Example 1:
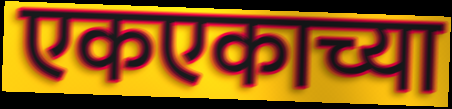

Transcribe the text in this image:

एकएकाच्या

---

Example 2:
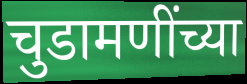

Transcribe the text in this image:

चुडामणींच्या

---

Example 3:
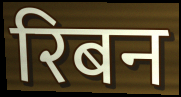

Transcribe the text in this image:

रिबन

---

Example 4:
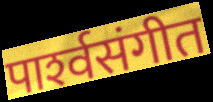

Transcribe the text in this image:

पार्श्‍वसंगीत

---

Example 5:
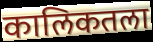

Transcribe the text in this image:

कालिकतला